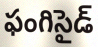
ఫంగిసైడ్